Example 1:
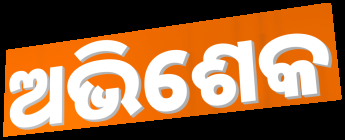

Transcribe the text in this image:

ଅଭିଶେକ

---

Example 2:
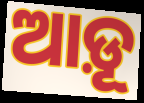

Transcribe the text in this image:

ଆଡ଼ୂ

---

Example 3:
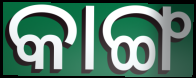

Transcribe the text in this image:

କାଙ୍ଗ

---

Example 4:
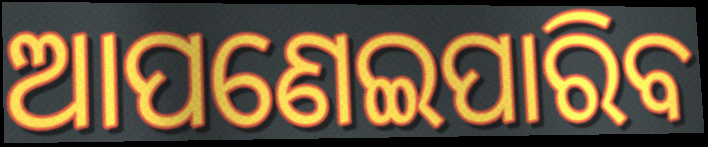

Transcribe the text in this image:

ଆପଣେଇପାରିବ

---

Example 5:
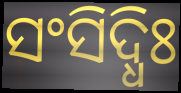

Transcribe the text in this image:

ସଂସିଦ୍ଧିଃ